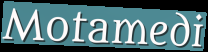
Motamedi